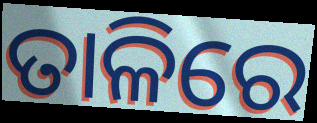
ତାଳିରେ